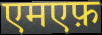
एमएफ़